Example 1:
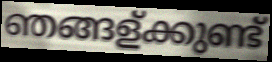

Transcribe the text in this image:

ഞങ്ങള്ക്കുണ്ട്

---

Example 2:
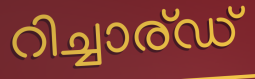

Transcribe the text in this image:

റിച്ചാര്ഡ്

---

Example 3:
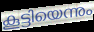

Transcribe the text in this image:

കൂട്ടിയെന്നും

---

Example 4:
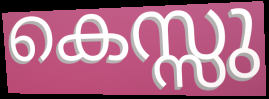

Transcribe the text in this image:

കെസ്സു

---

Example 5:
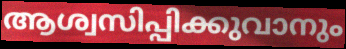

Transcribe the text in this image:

ആശ്വസിപ്പിക്കുവാനും